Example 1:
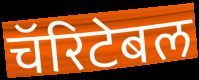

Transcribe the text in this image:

चॅरिटेबल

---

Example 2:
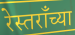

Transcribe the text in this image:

रेस्तरॉंच्या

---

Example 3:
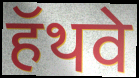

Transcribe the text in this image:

हॅथवे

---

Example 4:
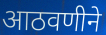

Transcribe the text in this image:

आठवणीने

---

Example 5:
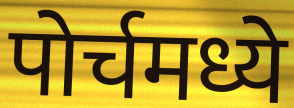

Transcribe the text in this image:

पोर्चमध्ये